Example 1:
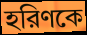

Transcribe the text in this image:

হরিণকে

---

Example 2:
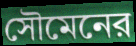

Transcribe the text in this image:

সৌমেনের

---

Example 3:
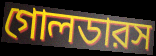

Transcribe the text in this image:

গোলডারস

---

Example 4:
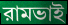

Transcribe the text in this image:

রামভাই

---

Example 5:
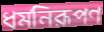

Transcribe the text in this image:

ধর্মনিরূপণ